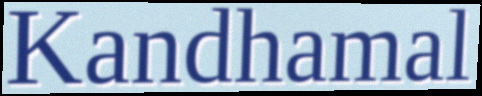
Kandhamal